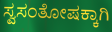
ಸ್ವಸಂತೋಷಕ್ಕಾಗಿ